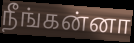
நீங்கன்னா